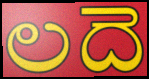
లదె